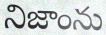
నిజాంను